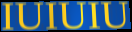
IUIUIU